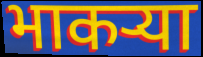
भाकऱ्या